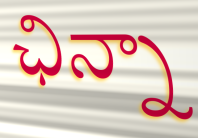
ఛిన్నా